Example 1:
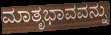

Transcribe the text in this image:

ಮಾತೃಭಾವವನ್ನು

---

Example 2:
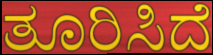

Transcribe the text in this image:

ತೂರಿಸಿದೆ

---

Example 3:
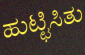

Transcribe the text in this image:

ಹುಟ್ಟಿಸಿತು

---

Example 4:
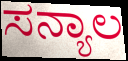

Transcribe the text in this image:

ಸನ್ಯಾಲ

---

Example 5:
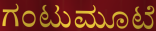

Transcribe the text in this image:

ಗಂಟುಮೂಟೆ